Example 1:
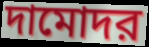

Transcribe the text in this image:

দামোদর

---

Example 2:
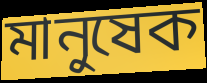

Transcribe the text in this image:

মানুষেক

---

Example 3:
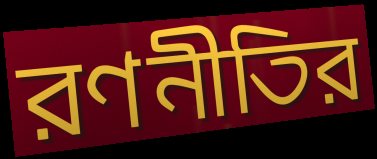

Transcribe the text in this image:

রণনীতির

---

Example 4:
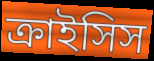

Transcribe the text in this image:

ক্রাইসিস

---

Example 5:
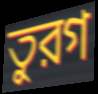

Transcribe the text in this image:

তুরগ